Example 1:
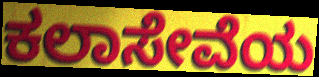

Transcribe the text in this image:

ಕಲಾಸೇವೆಯ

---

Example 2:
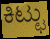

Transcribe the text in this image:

ಕಿಟ್ಟು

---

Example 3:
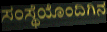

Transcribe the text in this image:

ಸಂಸ್ಥೆಯೊಂದಿಗಿನ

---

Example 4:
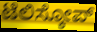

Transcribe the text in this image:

ಟೆಲಿಸ್ಕೋಪ್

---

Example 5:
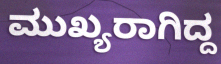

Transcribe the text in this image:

ಮುಖ್ಯರಾಗಿದ್ದ